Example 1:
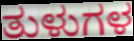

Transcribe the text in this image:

ತುಳುಗಳ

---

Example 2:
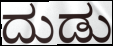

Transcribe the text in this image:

ದುಡು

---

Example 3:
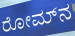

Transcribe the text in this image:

ರೋಮ್‍ನ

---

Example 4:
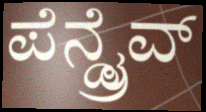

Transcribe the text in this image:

ಪೆನ್ಡ್ರೈವ್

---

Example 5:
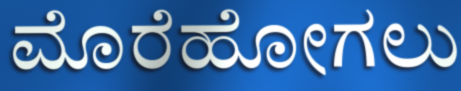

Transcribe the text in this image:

ಮೊರೆಹೋಗಲು